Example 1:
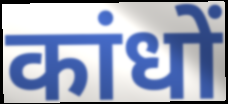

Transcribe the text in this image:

कांधों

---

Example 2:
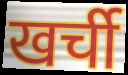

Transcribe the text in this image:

खर्ची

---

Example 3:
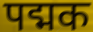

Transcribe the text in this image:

पद्मक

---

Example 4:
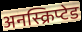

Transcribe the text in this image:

अनस्क्रिप्टेड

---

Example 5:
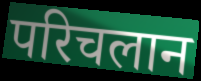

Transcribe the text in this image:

परिचलान